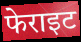
फेराइट